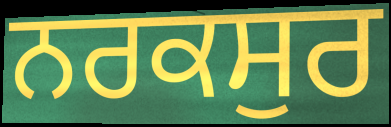
ਨਰਕਸੁਰ